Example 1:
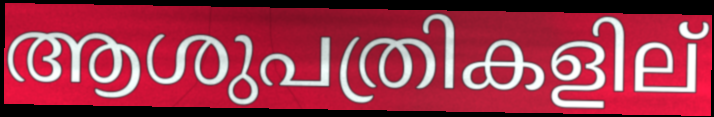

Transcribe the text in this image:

ആശുപത്രികളില്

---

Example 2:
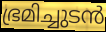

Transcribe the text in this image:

ഭ്രമിച്ചുടൻ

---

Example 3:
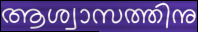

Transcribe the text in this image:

ആശ്വാസത്തിനു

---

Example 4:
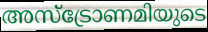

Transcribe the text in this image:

അസ്ട്രോണമിയുടെ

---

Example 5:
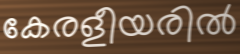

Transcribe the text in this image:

കേരളീയരിൽ